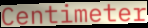
Centimeter